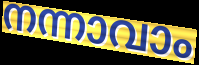
നന്നാവാം